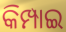
କିମ୍ପାଇ